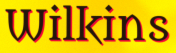
Wilkins